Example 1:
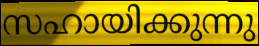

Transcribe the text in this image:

സഹായിക്കുന്നു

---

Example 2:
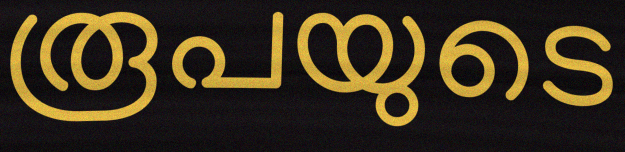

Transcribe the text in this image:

രൂപയുടെ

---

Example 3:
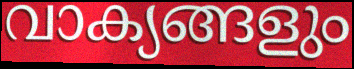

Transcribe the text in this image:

വാക്യങ്ങളും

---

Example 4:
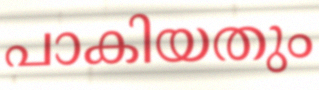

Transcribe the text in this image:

പാകിയതും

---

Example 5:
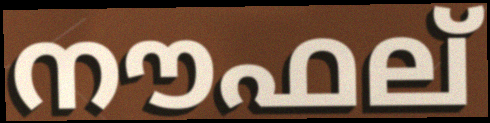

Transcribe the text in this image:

നൗഫല്